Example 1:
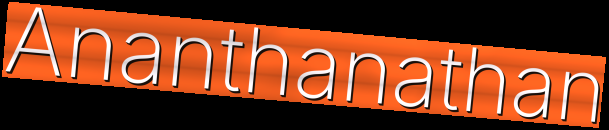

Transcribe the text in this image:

Ananthanathan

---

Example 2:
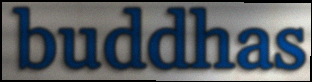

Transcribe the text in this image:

buddhas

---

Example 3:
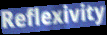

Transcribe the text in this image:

Reflexivity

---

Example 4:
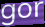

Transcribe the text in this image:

gor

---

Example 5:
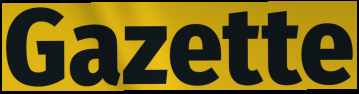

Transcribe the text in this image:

Gazette